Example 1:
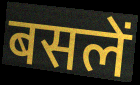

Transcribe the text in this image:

बसलें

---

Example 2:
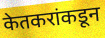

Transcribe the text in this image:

केतकरांकडून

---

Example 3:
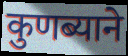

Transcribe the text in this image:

कुणब्याने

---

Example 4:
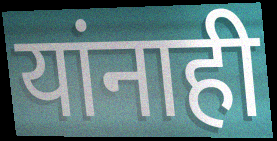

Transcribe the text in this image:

यांनाही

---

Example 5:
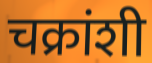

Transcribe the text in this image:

चक्रांशी